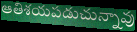
ఆతిశయపడుచున్నావు